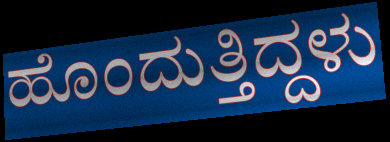
ಹೊಂದುತ್ತಿದ್ದಳು